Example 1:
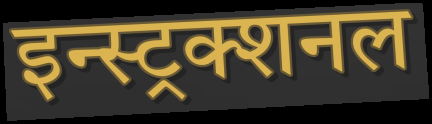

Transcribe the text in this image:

इन्स्ट्रक्शनल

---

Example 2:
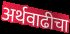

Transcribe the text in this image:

अर्थवाढीचा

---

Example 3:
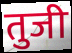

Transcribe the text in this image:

तुजी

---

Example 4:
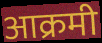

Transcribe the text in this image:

आक्रमी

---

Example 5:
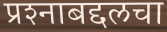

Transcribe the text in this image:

प्रश्नाबद्दलचा